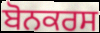
ਬੋਨਕਰਸ